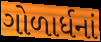
ગોળાર્ધનાં